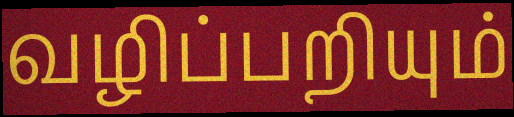
வழிப்பறியும்